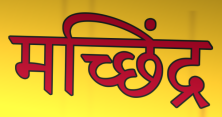
मच्छिंद्र